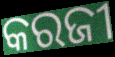
କରଜୀ